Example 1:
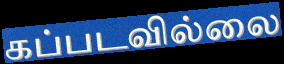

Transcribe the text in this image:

கப்படவில்லை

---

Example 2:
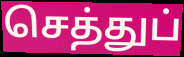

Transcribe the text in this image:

செத்துப்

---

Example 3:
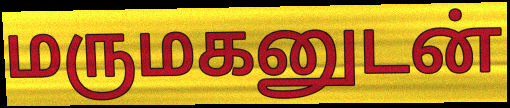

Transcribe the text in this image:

மருமகனுடன்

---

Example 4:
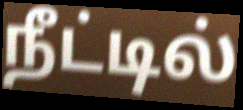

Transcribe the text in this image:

நீட்டில்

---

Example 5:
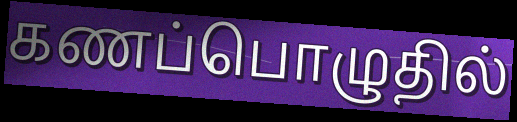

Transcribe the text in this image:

கணப்பொழுதில்